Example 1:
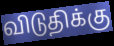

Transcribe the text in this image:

விடுதிக்கு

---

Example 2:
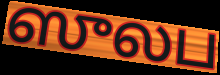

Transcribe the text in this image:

ஸுலப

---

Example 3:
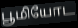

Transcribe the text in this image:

பூமியோட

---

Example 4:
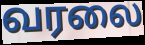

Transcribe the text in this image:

வரலை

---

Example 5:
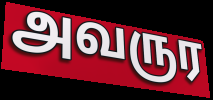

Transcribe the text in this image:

அவருர